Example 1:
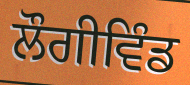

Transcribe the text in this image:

ਲੌਗੀਵਿੰਡ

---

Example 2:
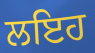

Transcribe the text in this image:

ਲਇਹ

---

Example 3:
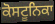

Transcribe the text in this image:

ਕੋਸਟੂਨਿਕਾ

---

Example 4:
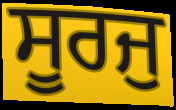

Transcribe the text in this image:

ਸੂਰਜੁ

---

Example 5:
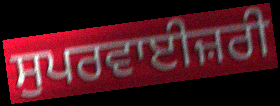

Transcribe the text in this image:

ਸੁਪਰਵਾਈਜ਼ਰੀ